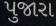
પુજારા